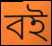
বই